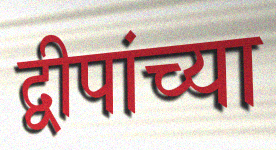
द्वीपांच्या